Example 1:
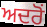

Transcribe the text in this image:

ਅਦਰੋਂ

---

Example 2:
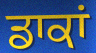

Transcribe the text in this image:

ਡਾਕਾਂ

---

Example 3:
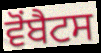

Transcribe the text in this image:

ਵੋਂਬੈਟਸ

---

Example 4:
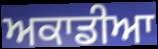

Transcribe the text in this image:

ਅਕਾਡੀਆ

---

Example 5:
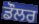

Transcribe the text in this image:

ਡੌਲਰ